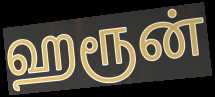
ஹரூன்